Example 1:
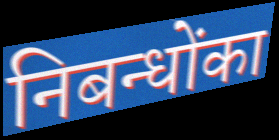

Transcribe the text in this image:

निबन्धोंका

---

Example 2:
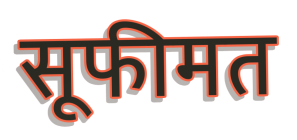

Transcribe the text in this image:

सूफीमत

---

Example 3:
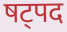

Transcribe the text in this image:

षट्पद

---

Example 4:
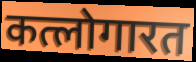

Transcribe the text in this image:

कत्लोगारत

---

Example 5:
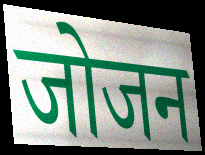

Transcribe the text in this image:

जोजन